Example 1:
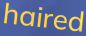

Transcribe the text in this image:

haired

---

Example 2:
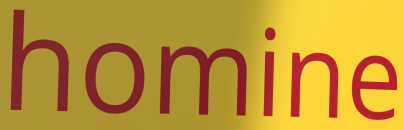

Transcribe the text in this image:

homine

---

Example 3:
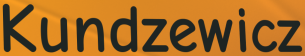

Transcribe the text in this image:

Kundzewicz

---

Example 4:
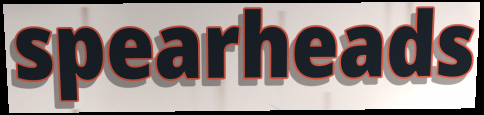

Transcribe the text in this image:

spearheads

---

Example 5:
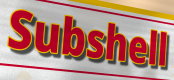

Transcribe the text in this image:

Subshell